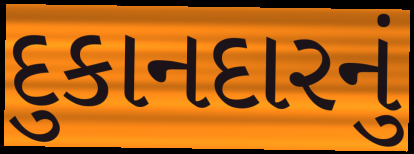
દુકાનદારનું